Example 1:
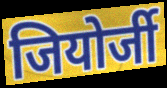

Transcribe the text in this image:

जियोर्जी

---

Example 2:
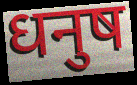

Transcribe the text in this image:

धनुष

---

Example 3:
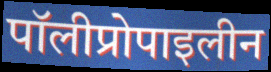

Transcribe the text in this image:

पॉलीप्रोपाइलीन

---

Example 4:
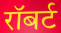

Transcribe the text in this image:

रॉबर्ट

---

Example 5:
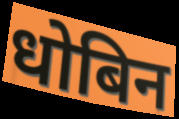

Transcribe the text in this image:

धोबिन